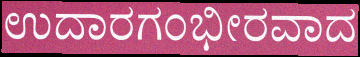
ಉದಾರಗಂಭೀರವಾದ